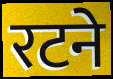
रटने